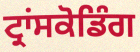
ਟ੍ਰਾਂਸਕੋਡਿੰਗ